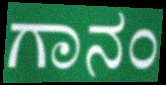
ಗಾನಂ